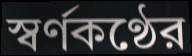
স্বর্ণকণ্ঠের